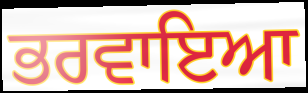
ਭਰਵਾਇਆ